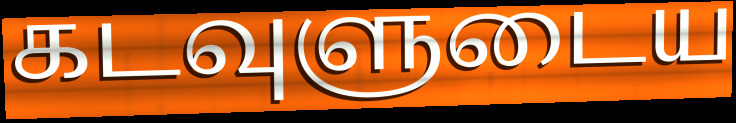
கடவுளுடைய